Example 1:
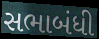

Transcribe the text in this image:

સભાબંધી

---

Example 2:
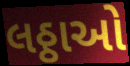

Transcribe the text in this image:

લઠ્ઠાઓ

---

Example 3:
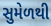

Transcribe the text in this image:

સુમેળથી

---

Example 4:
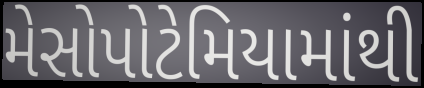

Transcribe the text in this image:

મેસોપોટેમિયામાંથી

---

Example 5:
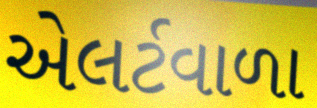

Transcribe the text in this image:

એલર્ટવાળા